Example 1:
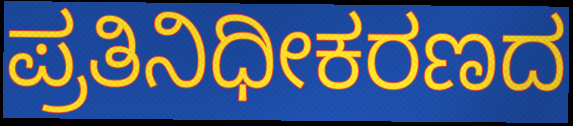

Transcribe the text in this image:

ಪ್ರತಿನಿಧೀಕರಣದ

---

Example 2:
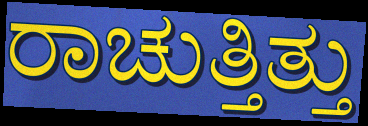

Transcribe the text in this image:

ರಾಚುತ್ತಿತ್ತು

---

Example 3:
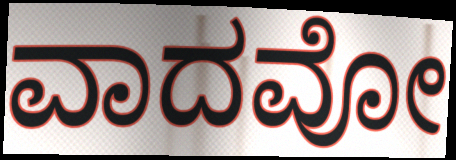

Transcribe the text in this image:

ವಾದವೋ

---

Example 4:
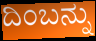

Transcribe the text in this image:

ದಿಂಬನ್ನು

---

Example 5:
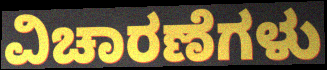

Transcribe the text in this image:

ವಿಚಾರಣೆಗಳು